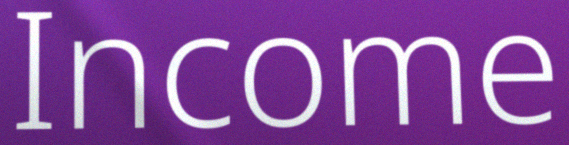
Income